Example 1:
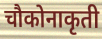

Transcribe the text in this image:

चौकोनाकृती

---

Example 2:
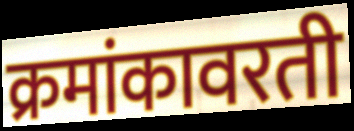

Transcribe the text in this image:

क्रमांकावरती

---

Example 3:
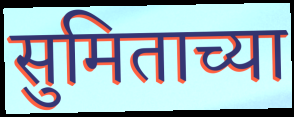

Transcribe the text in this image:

सुमिताच्या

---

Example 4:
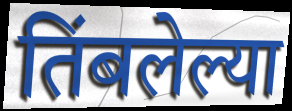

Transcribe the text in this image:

तिंबलेल्या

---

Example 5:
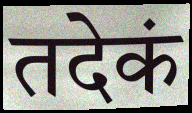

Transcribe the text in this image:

तदेकं